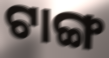
ଟାଙ୍ଗ